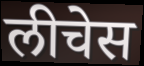
लीचेस